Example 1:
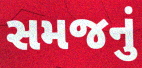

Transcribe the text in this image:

સમજનું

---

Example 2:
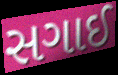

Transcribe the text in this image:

સગાઈ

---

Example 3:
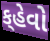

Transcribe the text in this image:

ક્‌હેવો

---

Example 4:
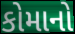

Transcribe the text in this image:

કોમાનો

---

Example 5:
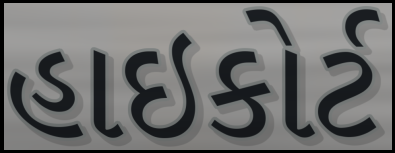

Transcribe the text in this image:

હાઇકોર્ટ